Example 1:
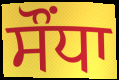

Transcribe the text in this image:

ਸੌਂਧਾ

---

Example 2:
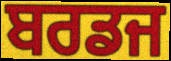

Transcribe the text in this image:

ਬਰਡਜ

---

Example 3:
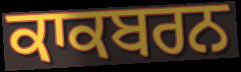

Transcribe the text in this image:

ਕਾਕਬਰਨ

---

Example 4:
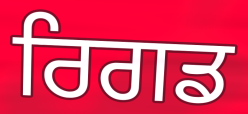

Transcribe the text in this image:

ਰਿਗਡ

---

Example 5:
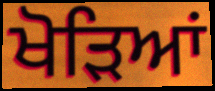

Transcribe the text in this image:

ਖੋੜਿਆਂ